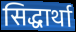
सिद्धार्था